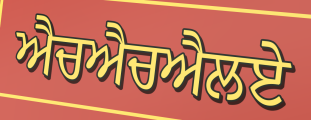
ਐਚਐਚਐਲਏ